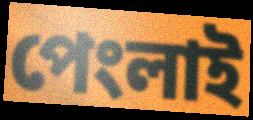
পেংলাই